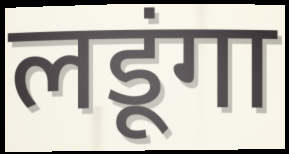
लडूंगा